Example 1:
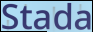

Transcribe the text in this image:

Stada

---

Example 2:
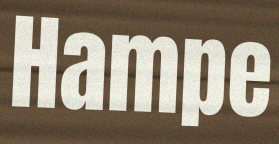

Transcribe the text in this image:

Hampe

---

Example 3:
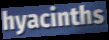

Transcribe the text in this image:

hyacinths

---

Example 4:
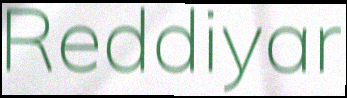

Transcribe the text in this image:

Reddiyar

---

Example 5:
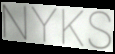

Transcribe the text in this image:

NYKS